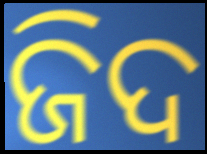
ଜିଦ